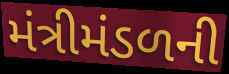
મંત્રીમંડળની